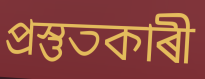
প্ৰস্তুতকাৰী